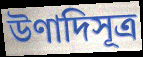
উণাদিসূত্র